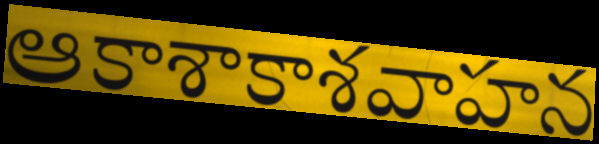
ఆకాశాకాశవాహన